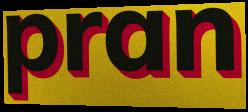
pran